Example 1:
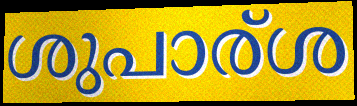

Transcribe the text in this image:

ശുപാര്ശ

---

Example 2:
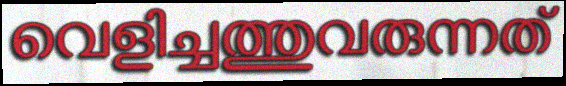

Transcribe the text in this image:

വെളിച്ചത്തുവരുന്നത്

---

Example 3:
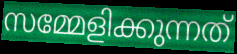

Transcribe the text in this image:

സമ്മേളിക്കുന്നത്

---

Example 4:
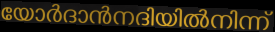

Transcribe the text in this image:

യോർദാൻനദിയിൽനിന്ന്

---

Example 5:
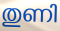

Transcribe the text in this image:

തുണി